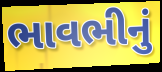
ભાવભીનું